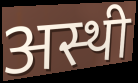
अस्थी